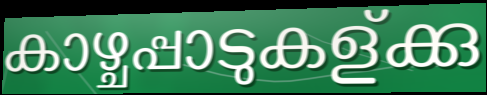
കാഴ്ചപ്പാടുകള്ക്കു